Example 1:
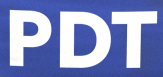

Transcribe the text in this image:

PDT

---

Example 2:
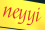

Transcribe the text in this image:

neyyi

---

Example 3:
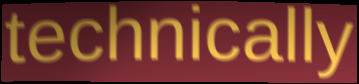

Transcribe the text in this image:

technically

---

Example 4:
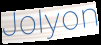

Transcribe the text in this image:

Jolyon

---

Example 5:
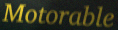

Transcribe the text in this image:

Motorable